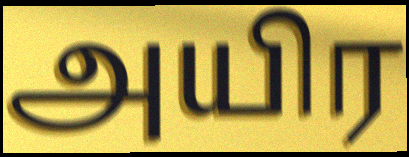
அயிர